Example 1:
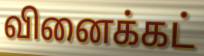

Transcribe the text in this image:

வினைக்கட்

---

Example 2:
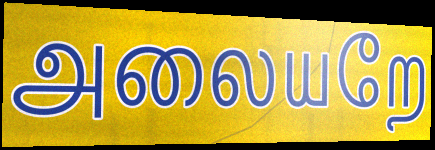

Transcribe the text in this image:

அலையறே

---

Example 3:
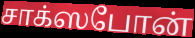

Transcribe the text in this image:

சாக்ஸபோன்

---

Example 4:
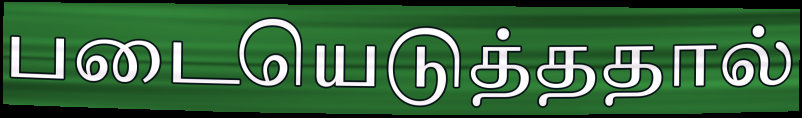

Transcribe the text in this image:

படையெடுத்ததால்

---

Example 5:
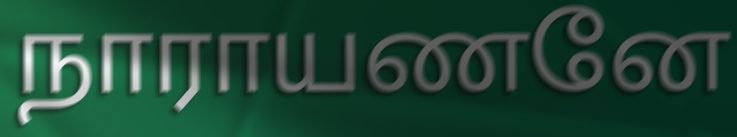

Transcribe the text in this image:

நாராயணனே